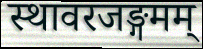
स्थावरजङ्गमम्